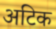
अटिक